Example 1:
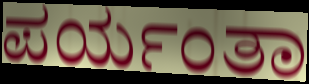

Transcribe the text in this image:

ಪರ್ಯಂತಾ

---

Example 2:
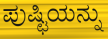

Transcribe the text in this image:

ಪುಷ್ಟಿಯನ್ನು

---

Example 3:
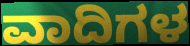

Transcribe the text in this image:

ವಾದಿಗಳ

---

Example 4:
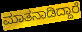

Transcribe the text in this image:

ಮಾತನಾಡಿದ್ದಾರೆ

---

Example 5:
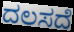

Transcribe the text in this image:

ದಲಸದೆ